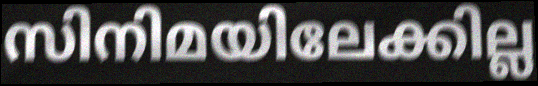
സിനിമയിലേക്കില്ല